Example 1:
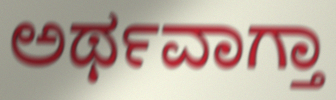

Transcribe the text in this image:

ಅರ್ಥವಾಗ್ತಾ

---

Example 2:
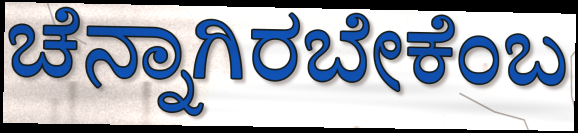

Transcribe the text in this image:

ಚೆನ್ನಾಗಿರಬೇಕೆಂಬ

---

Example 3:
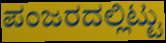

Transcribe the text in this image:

ಪಂಜರದಲ್ಲಿಟ್ಟು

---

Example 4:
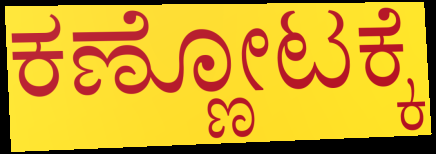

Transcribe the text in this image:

ಕಣ್ಣೋಟಕ್ಕೆ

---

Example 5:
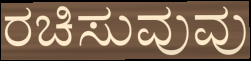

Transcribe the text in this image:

ರಚಿಸುವುವು